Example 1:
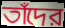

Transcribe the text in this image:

তাঁদের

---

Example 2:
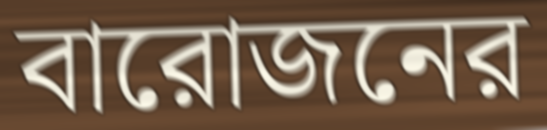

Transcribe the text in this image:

বারোজনের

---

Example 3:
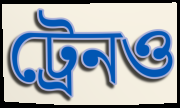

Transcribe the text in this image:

ট্রেনও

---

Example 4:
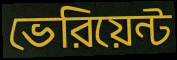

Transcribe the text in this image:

ভেরিয়েন্ট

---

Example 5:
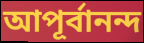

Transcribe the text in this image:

আপূর্বানন্দ